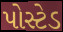
પોસ્ટેડ